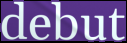
debut